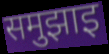
समुझाइ